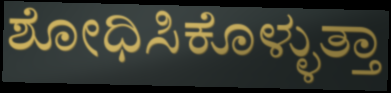
ಶೋಧಿಸಿಕೊಳ್ಳುತ್ತಾ